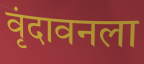
वृंदावनला